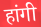
हांगी